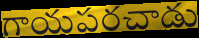
గాయపరచాడు